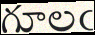
గూలఁ